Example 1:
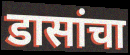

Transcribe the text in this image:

डासांचा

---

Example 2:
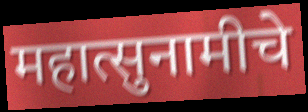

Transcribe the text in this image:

महात्सुनामीचे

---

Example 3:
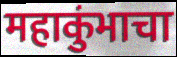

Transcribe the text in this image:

महाकुंभाचा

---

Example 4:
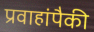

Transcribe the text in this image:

प्रवाहांपैकी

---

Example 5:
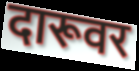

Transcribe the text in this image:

दारूवर